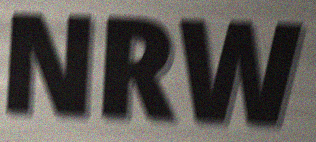
NRW